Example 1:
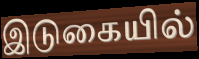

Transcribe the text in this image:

இடுகையில்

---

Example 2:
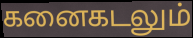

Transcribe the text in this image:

கனைகடலும்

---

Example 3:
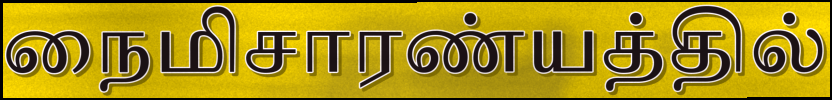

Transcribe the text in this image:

நைமிசாரண்யத்தில்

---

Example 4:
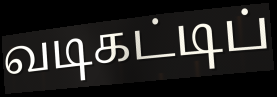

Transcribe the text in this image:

வடிகட்டிப்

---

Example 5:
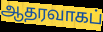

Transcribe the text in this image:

ஆதரவாகப்